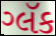
ગ્લૅક